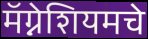
मॅग्नेशियमचे